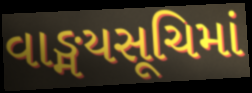
વાઙ્મયસૂચિમાં